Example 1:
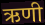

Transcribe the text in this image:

ऋणी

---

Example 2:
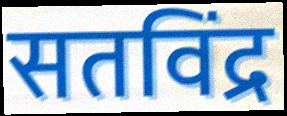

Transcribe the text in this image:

सतविंद्र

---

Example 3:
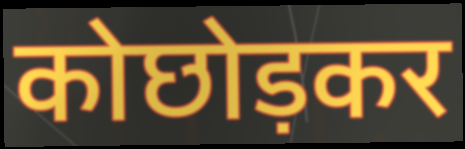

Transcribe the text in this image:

कोछोड़कर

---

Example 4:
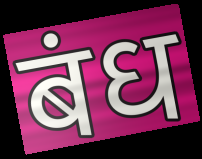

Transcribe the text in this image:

बंध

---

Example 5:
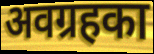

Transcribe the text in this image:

अवग्रहका